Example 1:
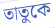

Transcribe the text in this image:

তাতুকে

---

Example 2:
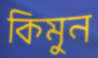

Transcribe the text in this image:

কিমুন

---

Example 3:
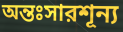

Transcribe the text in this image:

অন্তঃসারশূন্য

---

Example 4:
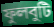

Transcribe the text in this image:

ফুলবুটি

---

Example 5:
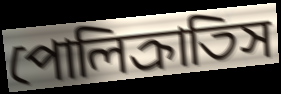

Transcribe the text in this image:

পোলিক্রাতিস